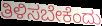
ತಿಳಿಸಬೇಕೆಂದು